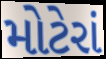
મોટેરાં